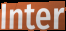
Inter